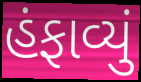
હંફાવ્યું